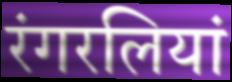
रंगरलियां